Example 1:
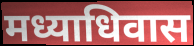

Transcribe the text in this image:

मध्याधिवास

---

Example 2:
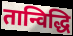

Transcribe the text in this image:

तान्विद्धि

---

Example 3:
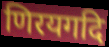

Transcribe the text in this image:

णिरयगदि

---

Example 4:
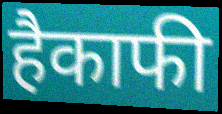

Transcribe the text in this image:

हैकाफी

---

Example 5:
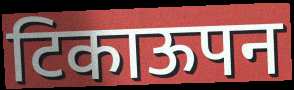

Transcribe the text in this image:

टिकाऊपन